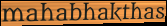
mahabhakthas